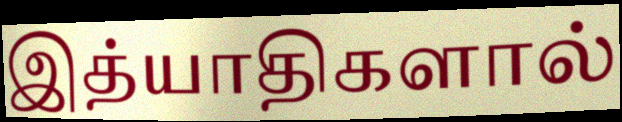
இத்யாதிகளால்